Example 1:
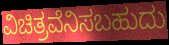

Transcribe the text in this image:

ವಿಚಿತ್ರವೆನಿಸಬಹುದು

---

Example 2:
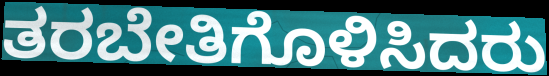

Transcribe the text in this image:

ತರಬೇತಿಗೊಳಿಸಿದರು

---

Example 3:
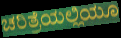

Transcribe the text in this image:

ಚರಿತ್ರೆಯಲ್ಲಿಯೂ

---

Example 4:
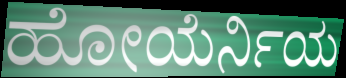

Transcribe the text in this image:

ಹೋಯೆರ್ನಿಯ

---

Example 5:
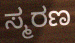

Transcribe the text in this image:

ಸ್ಮರಣ